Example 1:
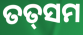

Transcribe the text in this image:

ତତ୍‍ସମ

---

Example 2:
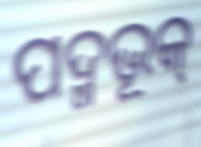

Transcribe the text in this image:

ପଦ୍ମଭୂକ୍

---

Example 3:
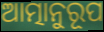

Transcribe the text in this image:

ଆତ୍ମାନୁରୂପ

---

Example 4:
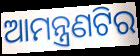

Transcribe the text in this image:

ଆମନ୍ତ୍ରଣଟିର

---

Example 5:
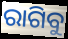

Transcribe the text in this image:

ରାଗିବୁ